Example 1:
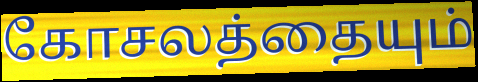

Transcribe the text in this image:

கோசலத்தையும்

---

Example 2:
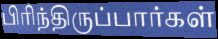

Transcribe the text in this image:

பிரிந்திருப்பார்கள்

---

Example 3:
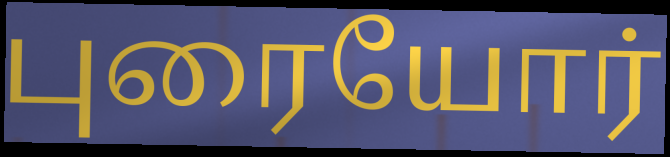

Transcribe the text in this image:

புரையோர்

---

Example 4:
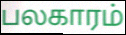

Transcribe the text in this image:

பலகாரம்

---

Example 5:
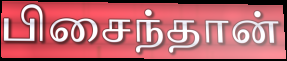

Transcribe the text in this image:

பிசைந்தான்